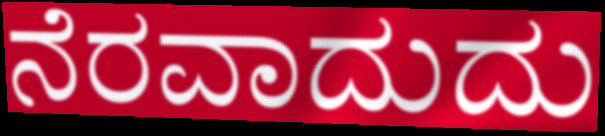
ನೆರವಾದುದು